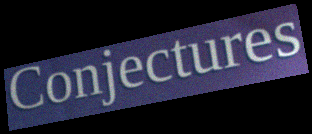
Conjectures